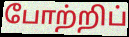
போற்றிப்